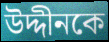
উদ্দীনকে